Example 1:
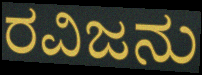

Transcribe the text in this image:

ರವಿಜನು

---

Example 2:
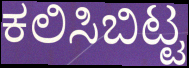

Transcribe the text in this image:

ಕಲಿಸಿಬಿಟ್ಟ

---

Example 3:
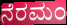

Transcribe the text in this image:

ನೆರಮಂ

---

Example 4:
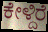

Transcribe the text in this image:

ಕೇಳ್ದಿರೆ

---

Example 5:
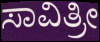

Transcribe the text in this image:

ಸಾವಿತ್ರೀ